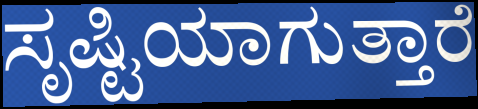
ಸೃಷ್ಟಿಯಾಗುತ್ತಾರೆ